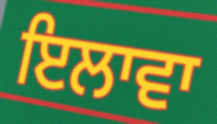
ਇਲਾਵਾ